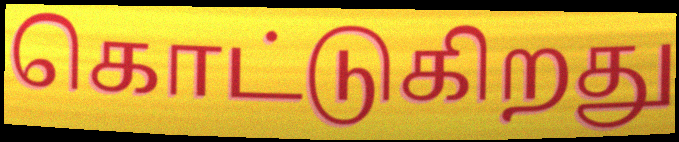
கொட்டுகிறது